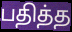
பதித்த